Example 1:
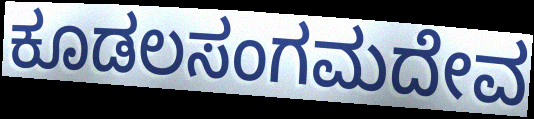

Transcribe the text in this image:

ಕೂಡಲಸಂಗಮದೇವ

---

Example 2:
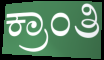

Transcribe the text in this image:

ಕ್ರಾಂತಿ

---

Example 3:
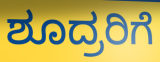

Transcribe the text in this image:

ಶೂದ್ರರಿಗೆ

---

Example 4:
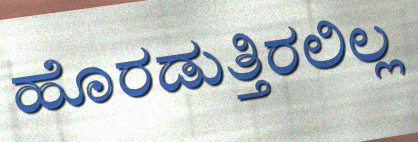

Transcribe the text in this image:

ಹೊರಡುತ್ತಿರಲಿಲ್ಲ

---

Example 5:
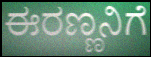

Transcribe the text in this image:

ಈರಣ್ಣನಿಗೆ